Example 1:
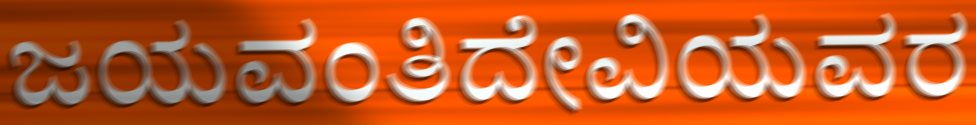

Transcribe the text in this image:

ಜಯವಂತಿದೇವಿಯವರ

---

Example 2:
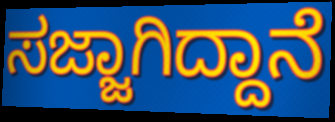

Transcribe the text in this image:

ಸಜ್ಜಾಗಿದ್ದಾನೆ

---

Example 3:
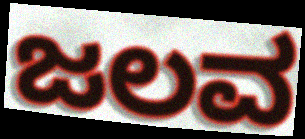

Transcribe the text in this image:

ಜಲವ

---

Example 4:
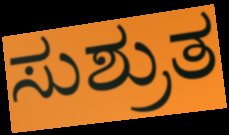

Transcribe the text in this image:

ಸುಶ್ರುತ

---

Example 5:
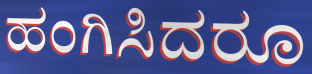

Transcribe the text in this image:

ಹಂಗಿಸಿದರೂ